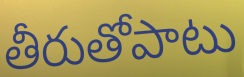
తీరుతోపాటు